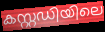
കസ്റ്റഡിയിലെ